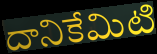
దానికేమిటి